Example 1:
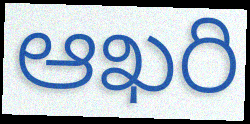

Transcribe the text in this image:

ఆఖరి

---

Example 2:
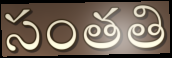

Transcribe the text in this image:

సంతతి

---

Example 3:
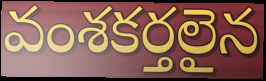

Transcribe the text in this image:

వంశకర్తలైన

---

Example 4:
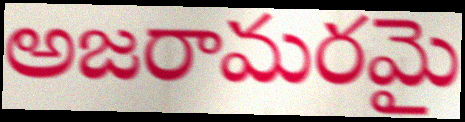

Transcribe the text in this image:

అజరామరమై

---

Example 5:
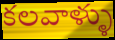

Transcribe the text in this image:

కలవాళ్ళు